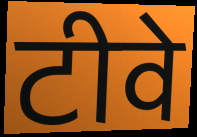
टीवे